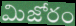
మిజోరం